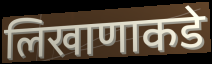
लिखाणाकडे